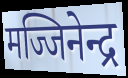
मज्जिनेन्द्र